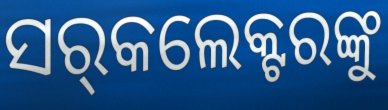
ସର୍‌କଲେକ୍ଟରଙ୍କୁ